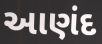
આણંદ